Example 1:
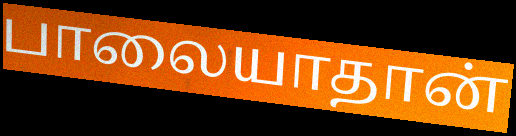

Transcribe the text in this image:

பாலையாதான்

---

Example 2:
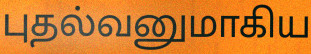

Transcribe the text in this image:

புதல்வனுமாகிய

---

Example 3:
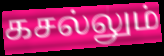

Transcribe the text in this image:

கசல்லும்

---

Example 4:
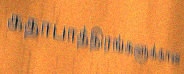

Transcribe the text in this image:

கதாபாத்திரங்களுக்கான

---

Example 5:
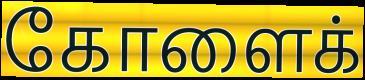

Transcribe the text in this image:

கோளைக்